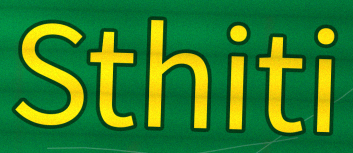
Sthiti